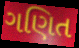
ગણિત